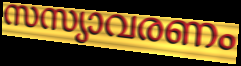
സസ്യാവരണം